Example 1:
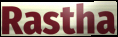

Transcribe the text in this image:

Rastha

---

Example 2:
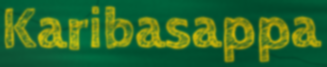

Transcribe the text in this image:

Karibasappa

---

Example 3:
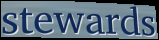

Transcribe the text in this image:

stewards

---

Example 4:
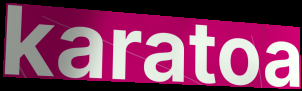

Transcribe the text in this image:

karatoa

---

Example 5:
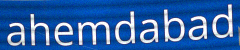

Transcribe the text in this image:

ahemdabad